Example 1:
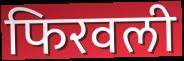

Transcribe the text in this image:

फिरवली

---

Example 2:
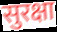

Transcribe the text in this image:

सुरक्षा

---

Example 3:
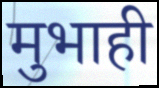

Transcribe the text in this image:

मुभाही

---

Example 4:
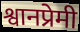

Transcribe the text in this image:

श्वानप्रेमी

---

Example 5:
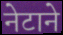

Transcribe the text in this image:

नेटाने